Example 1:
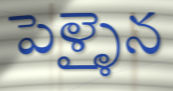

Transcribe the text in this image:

పెళ్ళైన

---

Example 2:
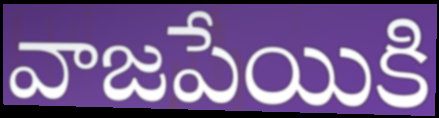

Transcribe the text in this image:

వాజపేయికి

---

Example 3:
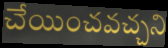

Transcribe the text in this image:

చేయించవచ్చని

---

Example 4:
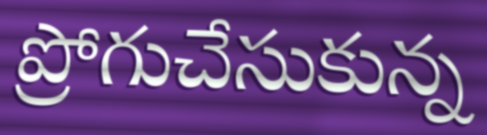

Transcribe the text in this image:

ప్రోగుచేసుకున్న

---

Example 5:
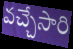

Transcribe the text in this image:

వచ్చేసారి